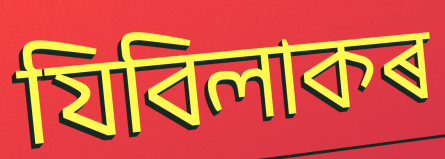
যিবিলাকৰ